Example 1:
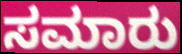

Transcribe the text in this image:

ಸಮಾರು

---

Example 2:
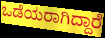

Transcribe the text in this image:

ಒಡೆಯರಾಗಿದ್ದಾರೆ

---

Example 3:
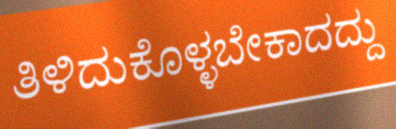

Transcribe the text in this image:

ತಿಳಿದುಕೊಳ್ಳಬೇಕಾದದ್ದು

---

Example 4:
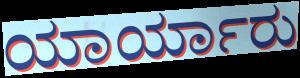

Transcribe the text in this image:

ಯಾರ್ಯಾರು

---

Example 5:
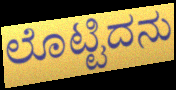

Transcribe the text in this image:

ಲೊಟ್ಟಿದನು